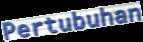
Pertubuhan